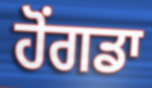
ਹੋਂਗਡਾ